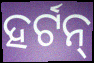
ହର୍ଟନ୍